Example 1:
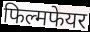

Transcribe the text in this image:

फिल्मफेयर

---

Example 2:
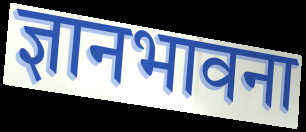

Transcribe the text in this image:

ज्ञानभावना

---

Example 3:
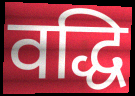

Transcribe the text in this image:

वद्धि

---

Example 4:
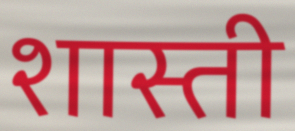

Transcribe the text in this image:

शास्ती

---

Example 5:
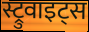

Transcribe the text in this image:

स्ट्रुवाइट्स